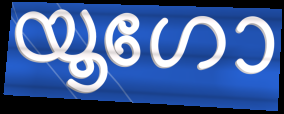
യൂഗോ